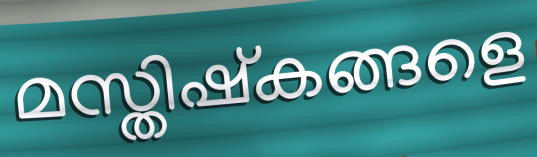
മസ്തിഷ്കങ്ങളെ